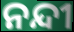
ନନ୍ଦୀ